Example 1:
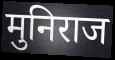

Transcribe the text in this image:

मुनिराज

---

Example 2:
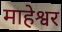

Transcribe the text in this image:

माहेश्वर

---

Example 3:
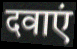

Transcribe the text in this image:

दवाएं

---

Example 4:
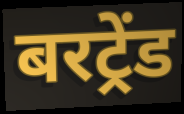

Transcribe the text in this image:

बरट्रेंड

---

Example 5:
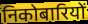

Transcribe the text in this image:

निकोबारियों